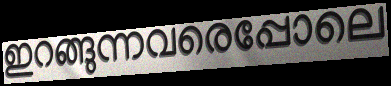
ഇറങ്ങുന്നവരെപ്പോലെ